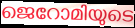
ജെറോമിയുടെ